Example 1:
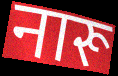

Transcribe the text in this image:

नारू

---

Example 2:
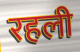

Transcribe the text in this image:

रहली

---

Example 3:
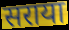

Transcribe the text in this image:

सराया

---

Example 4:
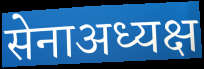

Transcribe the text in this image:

सेनाअध्यक्ष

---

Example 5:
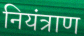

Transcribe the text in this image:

नियंत्राण